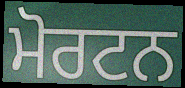
ਮੋਰਟਨ